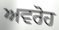
ਅਵਰੋਹ